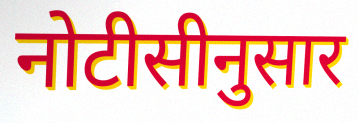
नोटीसीनुसार